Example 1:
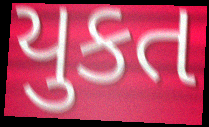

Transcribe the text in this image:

યુકત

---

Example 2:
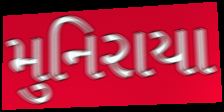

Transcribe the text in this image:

મુનિરાયા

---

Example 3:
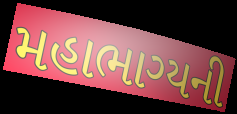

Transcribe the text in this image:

મહાભાગ્યની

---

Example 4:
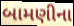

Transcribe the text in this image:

બામણીના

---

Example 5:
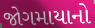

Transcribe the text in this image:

જોગમાયાનો